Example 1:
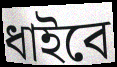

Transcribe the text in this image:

ধাইবে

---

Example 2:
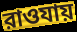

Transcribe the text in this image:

রাওযায়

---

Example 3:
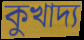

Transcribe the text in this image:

কুখাদ্য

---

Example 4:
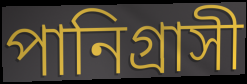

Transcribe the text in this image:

পানিগ্রাসী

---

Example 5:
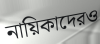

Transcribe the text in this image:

নায়িকাদেরও